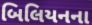
બિલિયનના